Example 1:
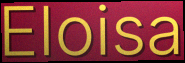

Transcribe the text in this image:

Eloisa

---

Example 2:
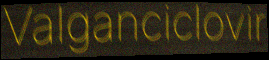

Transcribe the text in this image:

Valganciclovir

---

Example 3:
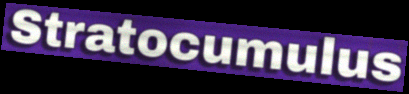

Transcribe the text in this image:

Stratocumulus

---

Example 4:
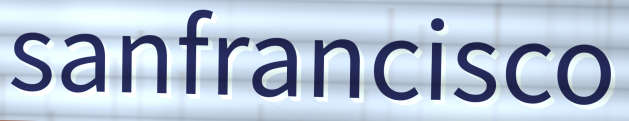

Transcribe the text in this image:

sanfrancisco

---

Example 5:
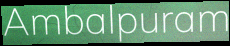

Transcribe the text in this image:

Ambalpuram